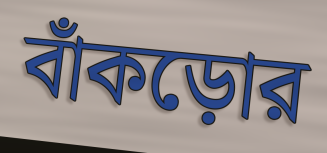
বাঁকড়োর